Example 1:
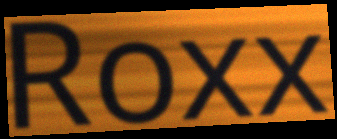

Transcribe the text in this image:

Roxx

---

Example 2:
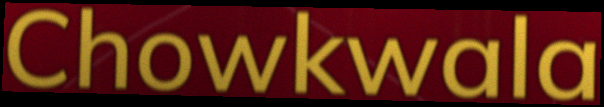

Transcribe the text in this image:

Chowkwala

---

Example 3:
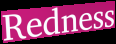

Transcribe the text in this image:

Redness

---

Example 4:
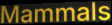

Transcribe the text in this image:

Mammals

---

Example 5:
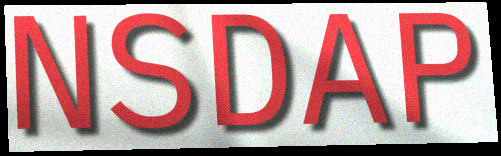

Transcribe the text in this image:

NSDAP